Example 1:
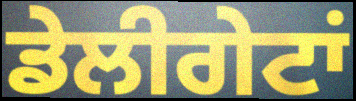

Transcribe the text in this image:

ਡੇਲੀਗੇਟਾਂ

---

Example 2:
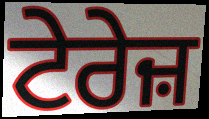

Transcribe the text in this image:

ਟੇਰੇਜ਼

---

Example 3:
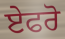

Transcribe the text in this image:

ਏਫਰੋ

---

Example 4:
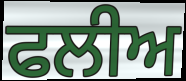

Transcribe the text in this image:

ਫਲੀਅ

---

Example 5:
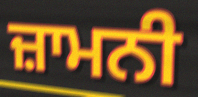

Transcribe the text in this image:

ਜ਼ਾਮਨੀ